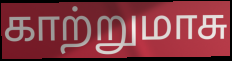
காற்றுமாசு